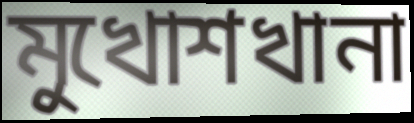
মুখোশখানা